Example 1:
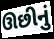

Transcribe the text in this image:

ઊછીનું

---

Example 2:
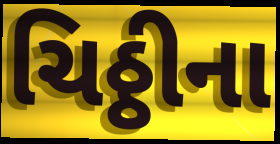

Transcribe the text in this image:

ચિઠ્ઠીના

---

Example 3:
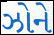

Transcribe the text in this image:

ઝોને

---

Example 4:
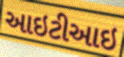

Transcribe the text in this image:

આઇટીઆઇ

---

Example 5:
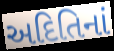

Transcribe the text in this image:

અદિતિનાં